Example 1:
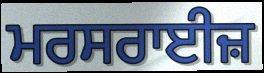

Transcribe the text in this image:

ਮਰਸਰਾਈਜ਼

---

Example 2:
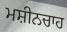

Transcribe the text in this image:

ਮਸ਼ੀਨਚਾਹ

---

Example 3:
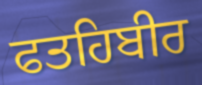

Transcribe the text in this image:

ਫਤਹਿਬੀਰ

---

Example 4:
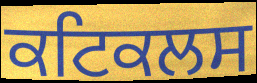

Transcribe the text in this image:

ਕਟਿਕਲਸ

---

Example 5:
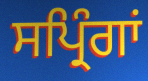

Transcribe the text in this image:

ਸਪ੍ਰਿੰਗਾਂ